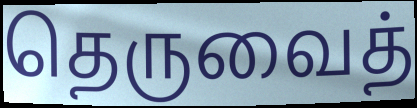
தெருவைத்